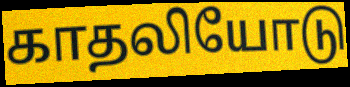
காதலியோடு